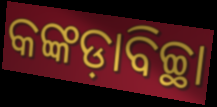
କଙ୍କଡ଼ାବିଚ୍ଛା